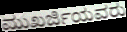
ಮುಖರ್ಜಿಯವರು